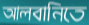
আলবানিতে